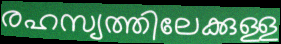
രഹസ്യത്തിലേക്കുള്ള